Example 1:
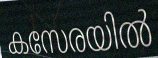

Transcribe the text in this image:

കസേരയിൽ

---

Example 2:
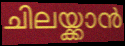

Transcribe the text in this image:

ചിലയ്ക്കാൻ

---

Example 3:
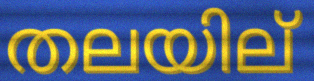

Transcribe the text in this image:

തലയില്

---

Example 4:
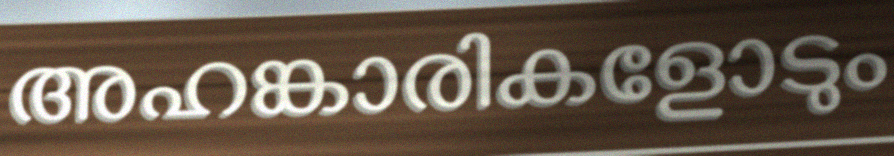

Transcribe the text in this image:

അഹങ്കാരികളോടും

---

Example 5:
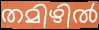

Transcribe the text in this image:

തമിഴിൽ